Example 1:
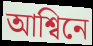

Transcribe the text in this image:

আশ্বিনে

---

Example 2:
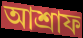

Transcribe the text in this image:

আশ্রাফ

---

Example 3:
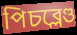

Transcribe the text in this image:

পিচব্লেণ্ড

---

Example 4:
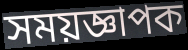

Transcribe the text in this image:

সময়জ্ঞাপক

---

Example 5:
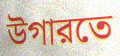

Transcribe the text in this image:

উগারতে